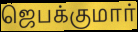
ஜெபக்குமார்